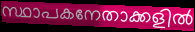
സ്ഥാപകനേതാക്കളിൽ